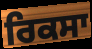
ਰਿਕਸਾ